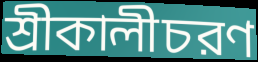
শ্রীকালীচরণ